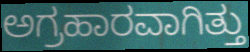
ಅಗ್ರಹಾರವಾಗಿತ್ತು